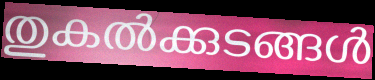
തുകൽക്കുടങ്ങൾ